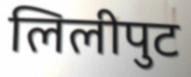
लिलीपुट